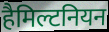
हैमिल्टनियन